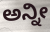
ಅನ್ನೀ